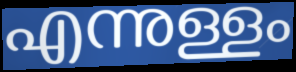
എന്നുള്ളം